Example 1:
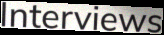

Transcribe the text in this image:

Interviews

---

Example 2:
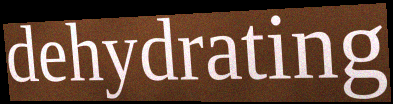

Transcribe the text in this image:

dehydrating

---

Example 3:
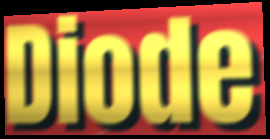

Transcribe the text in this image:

Diode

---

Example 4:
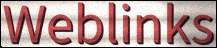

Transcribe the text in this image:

Weblinks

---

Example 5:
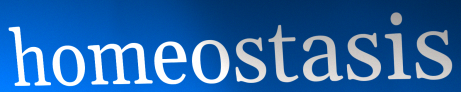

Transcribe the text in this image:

homeostasis